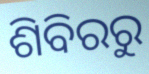
ଶିବିରରୁ